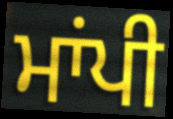
ਮਾਂਪੀ